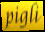
pigli